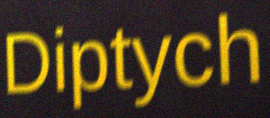
Diptych